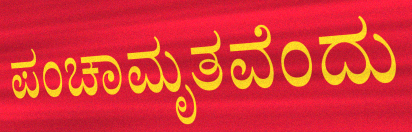
ಪಂಚಾಮೃತವೆಂದು